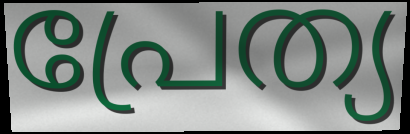
പ്രേത്യ